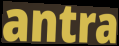
antra